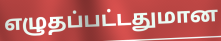
எழுதப்பட்டதுமான